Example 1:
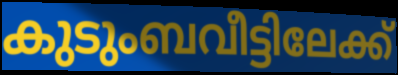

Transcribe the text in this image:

കുടുംബവീട്ടിലേക്ക്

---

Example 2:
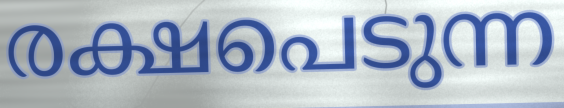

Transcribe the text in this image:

രക്ഷപെടുന്ന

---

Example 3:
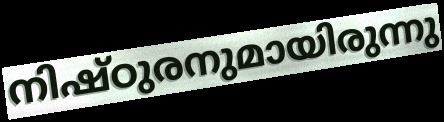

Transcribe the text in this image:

നിഷ്ഠുരനുമായിരുന്നു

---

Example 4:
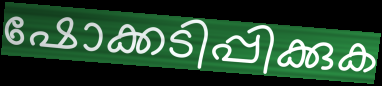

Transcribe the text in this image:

ഷോക്കടിപ്പിക്കുക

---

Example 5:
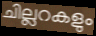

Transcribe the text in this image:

ചില്ലറകളും